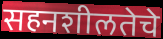
सहनशीलतेचे